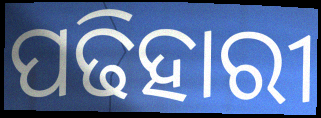
ପଢିହାରୀ